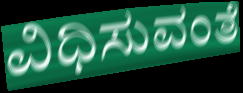
ವಿಧಿಸುವಂತೆ